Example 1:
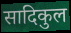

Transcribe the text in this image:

सादिकुल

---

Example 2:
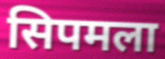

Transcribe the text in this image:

सिपमला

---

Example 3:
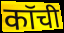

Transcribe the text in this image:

कॉची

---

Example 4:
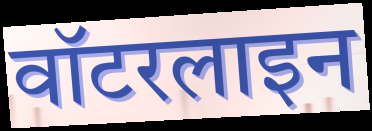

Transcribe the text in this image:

वॉटरलाइन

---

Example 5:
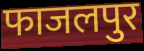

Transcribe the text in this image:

फाजलपुर